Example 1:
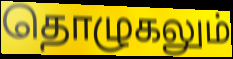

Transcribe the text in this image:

தொழுகலும்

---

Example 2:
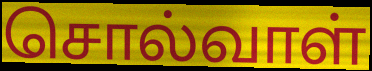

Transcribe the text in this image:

சொல்வாள்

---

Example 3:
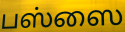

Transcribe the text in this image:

பஸ்ஸை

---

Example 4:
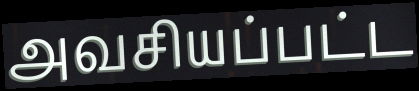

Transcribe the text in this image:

அவசியப்பட்ட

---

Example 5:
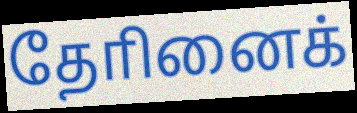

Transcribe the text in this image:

தேரினைக்